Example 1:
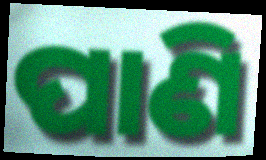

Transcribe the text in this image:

ପାଣି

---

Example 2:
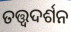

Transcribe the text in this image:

ତତ୍ତ୍ଵଦର୍ଶନ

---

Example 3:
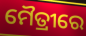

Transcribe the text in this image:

ମୈତ୍ରୀରେ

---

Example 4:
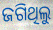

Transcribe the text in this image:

ଜଗିଥିଲୁ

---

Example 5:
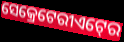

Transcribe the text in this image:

ସେକ୍ରେଟେରୀଏଟ୍‍ରେ